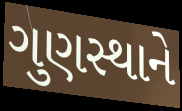
ગુણસ્થાને